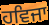
ਹਵਿਜਾ